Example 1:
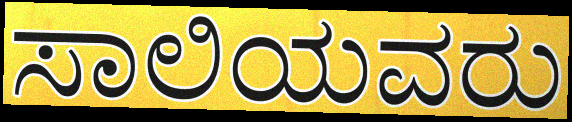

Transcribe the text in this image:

ಸಾಲಿಯವರು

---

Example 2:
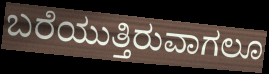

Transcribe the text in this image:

ಬರೆಯುತ್ತಿರುವಾಗಲೂ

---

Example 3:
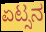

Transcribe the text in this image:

ಏಟ್ಸನ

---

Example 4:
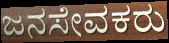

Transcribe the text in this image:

ಜನಸೇವಕರು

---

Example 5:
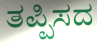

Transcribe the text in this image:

ತಪ್ಪಿಸದ